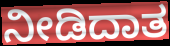
ನೀಡಿದಾತ